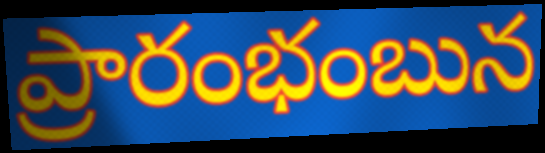
ప్రారంభంబున